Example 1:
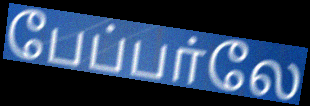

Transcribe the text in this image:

பேப்பர்லே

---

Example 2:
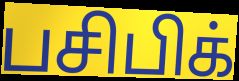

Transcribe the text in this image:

பசிபிக்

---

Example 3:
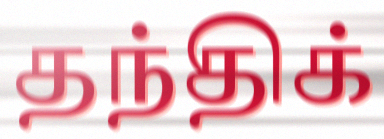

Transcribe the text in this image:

தந்திக்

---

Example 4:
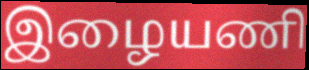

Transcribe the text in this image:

இழையணி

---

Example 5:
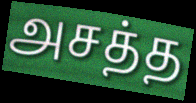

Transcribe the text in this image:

அசத்த